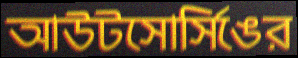
আউটসোর্সিঙের